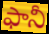
ఫానీ